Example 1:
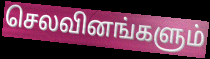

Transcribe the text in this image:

செலவினங்களும்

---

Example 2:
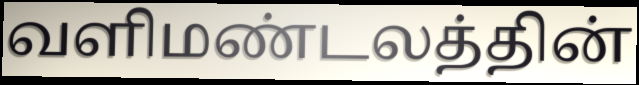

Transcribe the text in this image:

வளிமண்டலத்தின்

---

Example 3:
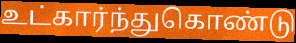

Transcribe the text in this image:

உட்கார்ந்துகொண்டு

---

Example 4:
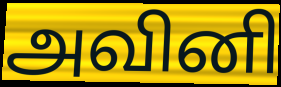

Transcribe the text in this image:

அவினி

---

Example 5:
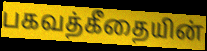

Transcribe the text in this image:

பகவத்கீதையின்